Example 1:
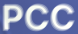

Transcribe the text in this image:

PCC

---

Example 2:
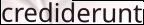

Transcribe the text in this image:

crediderunt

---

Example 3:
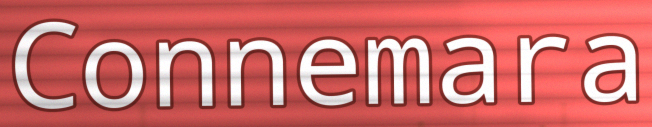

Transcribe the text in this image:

Connemara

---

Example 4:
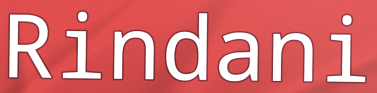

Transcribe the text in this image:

Rindani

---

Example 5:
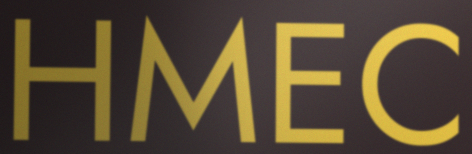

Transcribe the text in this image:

HMEC